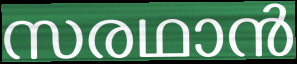
സരഥാൻ